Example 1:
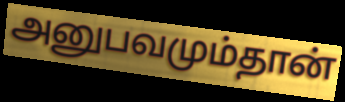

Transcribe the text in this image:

அனுபவமும்தான்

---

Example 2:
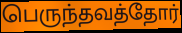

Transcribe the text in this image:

பெருந்தவத்தோர்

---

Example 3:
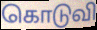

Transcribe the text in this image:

கொடுவி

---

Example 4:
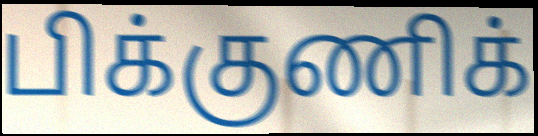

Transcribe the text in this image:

பிக்குணிக்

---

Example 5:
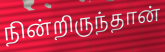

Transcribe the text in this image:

நின்றிருந்தான்